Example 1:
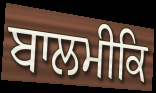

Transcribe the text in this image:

ਬਾਲਮੀਕਿ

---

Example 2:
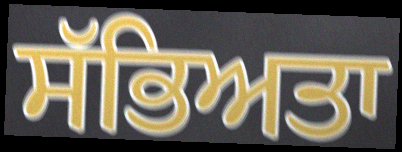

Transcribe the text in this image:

ਸੱਭਿਅਤਾ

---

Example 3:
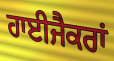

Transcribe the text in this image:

ਹਾਈਜੈਕਰਾਂ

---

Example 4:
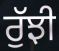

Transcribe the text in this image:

ਰੁੱਝੀ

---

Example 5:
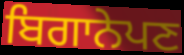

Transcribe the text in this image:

ਬਿਗਾਨੇਪਣ